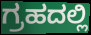
ಗ್ರಹದಲ್ಲಿ